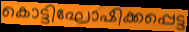
കൊട്ടിഘോഷിക്കപ്പെട്ട